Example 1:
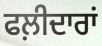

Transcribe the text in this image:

ਫਲ਼ੀਦਾਰਾਂ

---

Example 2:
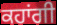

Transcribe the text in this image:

ਕਹਾਂਗੀ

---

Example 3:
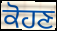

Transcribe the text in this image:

ਕੋਹਣ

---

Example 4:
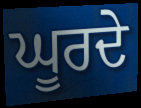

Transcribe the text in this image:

ਘੂਰਦੇ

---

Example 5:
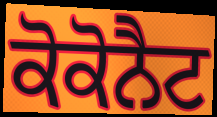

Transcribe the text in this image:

ਕੋਕੋਨੈਟ